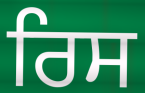
ਰਿਸ